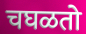
चघळतो